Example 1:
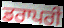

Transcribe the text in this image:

ਡਰਾਪਰੀ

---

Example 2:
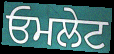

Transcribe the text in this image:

ਓਮਲੇਟ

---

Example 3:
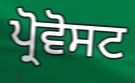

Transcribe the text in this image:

ਪ੍ਰੋਵੋਸਟ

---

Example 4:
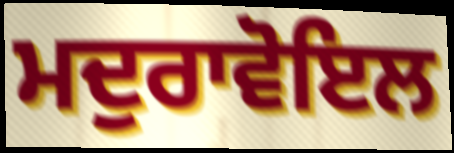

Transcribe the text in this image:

ਮਦੁਰਾਵੋਇਲ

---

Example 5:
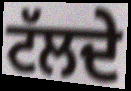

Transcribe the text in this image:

ਟੱਲਦੇ